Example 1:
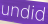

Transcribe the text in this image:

undid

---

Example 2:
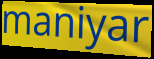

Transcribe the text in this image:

maniyar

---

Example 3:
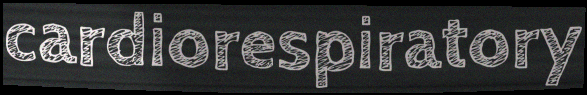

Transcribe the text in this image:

cardiorespiratory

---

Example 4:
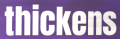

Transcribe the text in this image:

thickens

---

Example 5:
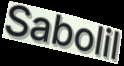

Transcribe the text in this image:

Sabolil